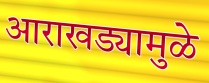
आराखड्यामुळे